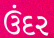
ઉંદર